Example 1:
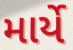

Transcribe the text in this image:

માર્યે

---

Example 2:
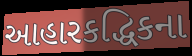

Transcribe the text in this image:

આહારકદ્ધિકના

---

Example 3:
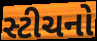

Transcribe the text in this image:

સ્ટીચનો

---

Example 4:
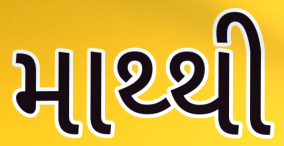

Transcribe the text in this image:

માથ્થી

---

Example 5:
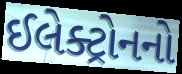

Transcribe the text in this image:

ઈલેક્ટ્રોનનો